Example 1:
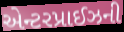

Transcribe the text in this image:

એન્ટરપ્રાઈઝની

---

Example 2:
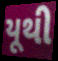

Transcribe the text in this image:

યૂથી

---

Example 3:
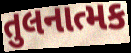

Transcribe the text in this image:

તુલનાત્મક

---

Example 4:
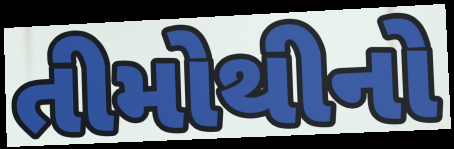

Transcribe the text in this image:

તીમોથીનો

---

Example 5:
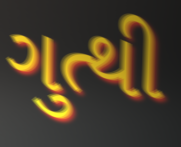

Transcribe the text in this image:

ગુત્થી